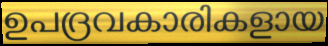
ഉപദ്രവകാരികളായ